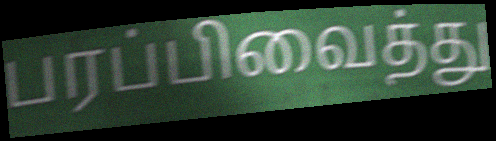
பரப்பிவைத்து